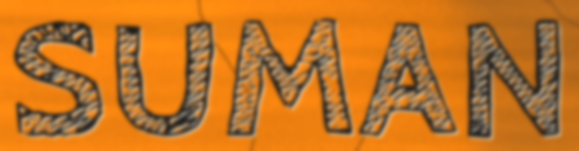
SUMAN